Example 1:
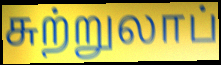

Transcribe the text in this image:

சுற்றுலாப்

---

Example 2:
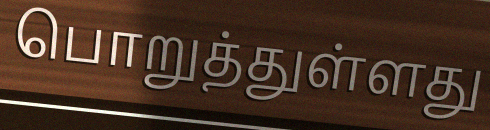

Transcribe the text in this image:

பொறுத்துள்ளது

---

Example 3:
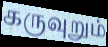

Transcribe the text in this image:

கருவுறும்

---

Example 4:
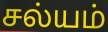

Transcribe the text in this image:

சல்யம்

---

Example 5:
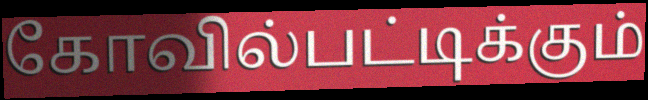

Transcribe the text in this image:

கோவில்பட்டிக்கும்